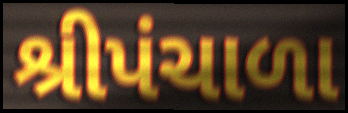
શ્રીપંચાળા